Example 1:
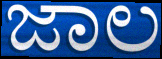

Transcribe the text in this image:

ಜಾಲ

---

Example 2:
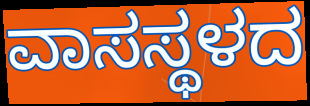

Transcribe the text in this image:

ವಾಸಸ್ಥಳದ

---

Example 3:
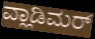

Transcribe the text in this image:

ವ್ಲಾಡಿಮರ್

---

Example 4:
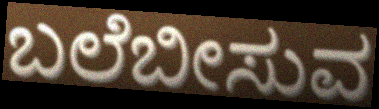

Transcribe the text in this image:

ಬಲೆಬೀಸುವ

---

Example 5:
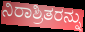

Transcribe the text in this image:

ನಿರಾಶ್ರಿತರನ್ನು